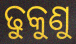
ଢୁକୁଣୁ